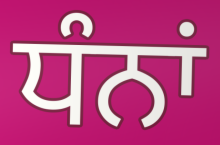
ਧੰਨਾਂ